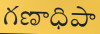
గణాధిపా